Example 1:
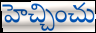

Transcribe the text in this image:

హెచ్చించు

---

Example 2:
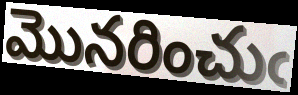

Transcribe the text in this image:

మొనరించుఁ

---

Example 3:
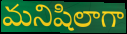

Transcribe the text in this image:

మనిషిలాగా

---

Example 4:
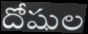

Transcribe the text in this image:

దోషుల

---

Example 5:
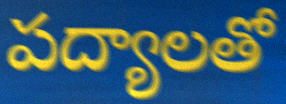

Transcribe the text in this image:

పద్యాలతో